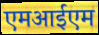
एमआईएम